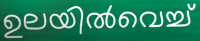
ഉലയിൽവെച്ച്